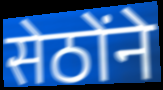
सेठोंने